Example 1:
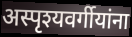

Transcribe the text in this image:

अस्पृश्यवर्गीयांना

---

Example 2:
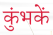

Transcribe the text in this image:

कुंभकें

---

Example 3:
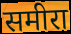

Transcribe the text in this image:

समीरा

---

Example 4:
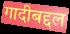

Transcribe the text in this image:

गादीबद्दल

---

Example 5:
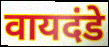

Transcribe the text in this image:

वायदंडे